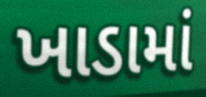
ખાડામાં